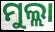
ମୁଲ୍ଲା